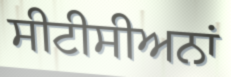
ਸੀਟੀਸੀਅਨਾਂ